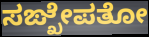
ಸಙ್ಖೇಪತೋ